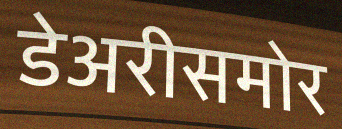
डेअरीसमोर